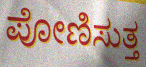
ಪೋಣಿಸುತ್ತ